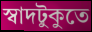
স্বাদটুকুতে